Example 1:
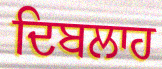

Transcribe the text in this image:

ਦਿਬਲਾਹ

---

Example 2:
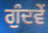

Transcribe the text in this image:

ਗੁੰਦਵੇਂ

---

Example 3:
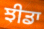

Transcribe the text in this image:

ਝੀਡਾ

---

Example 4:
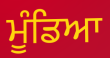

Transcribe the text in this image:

ਮੂੰਡਿਆ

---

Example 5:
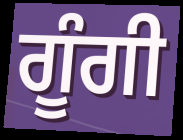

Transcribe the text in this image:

ਗੂੰਗੀ